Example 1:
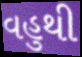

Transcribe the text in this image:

વહુથી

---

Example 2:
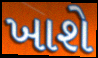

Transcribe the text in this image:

ખાશે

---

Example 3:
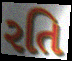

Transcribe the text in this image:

રતિ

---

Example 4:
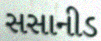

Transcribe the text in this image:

સસાનીડ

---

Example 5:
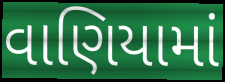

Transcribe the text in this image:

વાણિયામાં